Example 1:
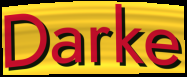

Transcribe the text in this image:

Darke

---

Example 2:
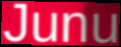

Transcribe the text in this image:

Junu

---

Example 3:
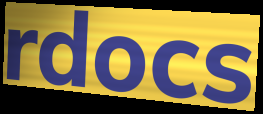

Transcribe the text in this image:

rdocs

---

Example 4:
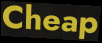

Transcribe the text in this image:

Cheap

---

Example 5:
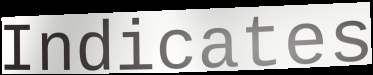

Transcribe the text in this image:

Indicates